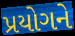
પ્રયોગને